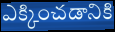
ఎక్కించడానికి